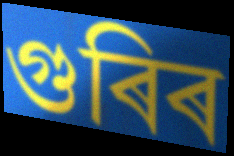
গুৰিৰ